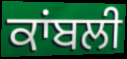
ਕਾਂਬਲੀ